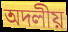
অদলীয়